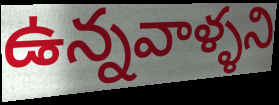
ఉన్నవాళ్ళని